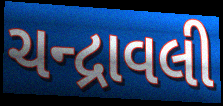
ચન્દ્રાવલી